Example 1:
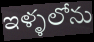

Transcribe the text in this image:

ఇళ్ళలోను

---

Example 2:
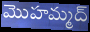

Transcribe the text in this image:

మొహమ్మద్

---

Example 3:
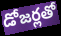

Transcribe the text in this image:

డోజర్లతో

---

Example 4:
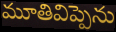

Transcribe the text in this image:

మూతివిప్పెను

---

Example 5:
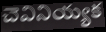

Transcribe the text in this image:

చెవినియ్యక